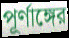
পূর্ণাঙ্গের